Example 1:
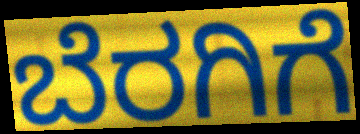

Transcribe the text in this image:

ಬೆರಗಿಗೆ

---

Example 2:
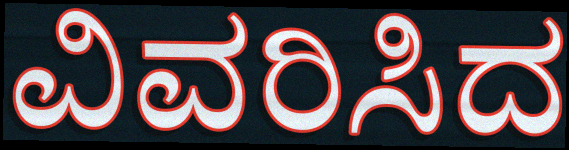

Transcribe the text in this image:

ವಿವರಿಸಿದ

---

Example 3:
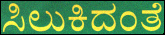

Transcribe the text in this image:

ಸಿಲುಕಿದಂತೆ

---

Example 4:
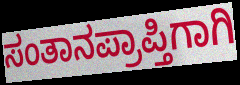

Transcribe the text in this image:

ಸಂತಾನಪ್ರಾಪ್ತಿಗಾಗಿ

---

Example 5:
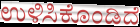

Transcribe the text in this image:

ಉಳಿಸಿಕೊಂಡಿದೆ